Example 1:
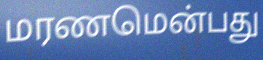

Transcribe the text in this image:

மரணமென்பது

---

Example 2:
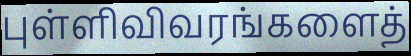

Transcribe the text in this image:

புள்ளிவிவரங்களைத்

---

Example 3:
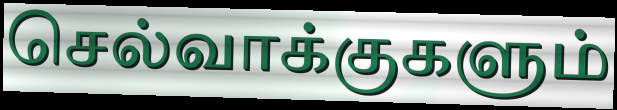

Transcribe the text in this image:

செல்வாக்குகளும்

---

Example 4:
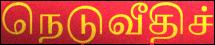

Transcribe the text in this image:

நெடுவீதிச்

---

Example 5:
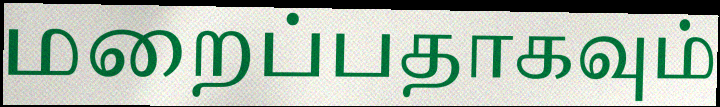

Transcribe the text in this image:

மறைப்பதாகவும்